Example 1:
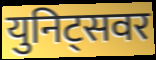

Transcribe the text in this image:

युनिट्सवर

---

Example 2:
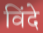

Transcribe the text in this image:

विंदे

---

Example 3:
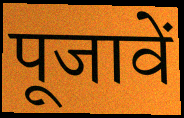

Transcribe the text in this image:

पूजावें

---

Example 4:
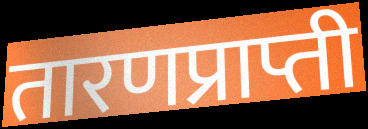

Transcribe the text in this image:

तारणप्राप्ती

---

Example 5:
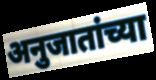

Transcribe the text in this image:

अनुजातांच्या